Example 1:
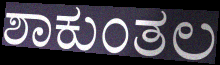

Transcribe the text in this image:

ಶಾಕುಂತಲ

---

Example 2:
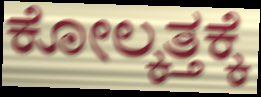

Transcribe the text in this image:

ಕೋಲ್ಕತ್ತಕ್ಕೆ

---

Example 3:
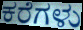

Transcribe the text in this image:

ಕರೆಗಳು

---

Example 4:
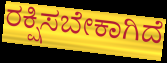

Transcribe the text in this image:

ರಕ್ಷಿಸಬೇಕಾಗಿದೆ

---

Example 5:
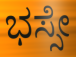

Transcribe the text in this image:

ಭಸ್ಸೇ